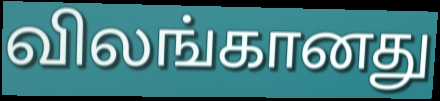
விலங்கானது